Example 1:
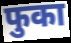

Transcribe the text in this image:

फुका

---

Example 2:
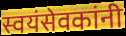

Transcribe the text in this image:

स्वयंसेवकांनी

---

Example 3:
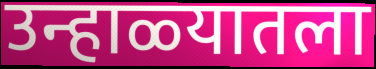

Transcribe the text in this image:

उन्हाळ्यातला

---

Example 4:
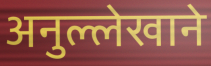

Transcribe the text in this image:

अनुल्लेखाने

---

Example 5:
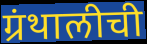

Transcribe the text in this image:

ग्रंथालीची